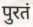
पुरतं